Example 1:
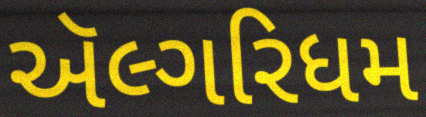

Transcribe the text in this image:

ઍલ્ગરિધમ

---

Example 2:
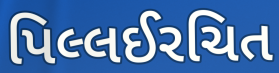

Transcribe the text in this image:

પિલ્લઈરચિત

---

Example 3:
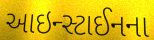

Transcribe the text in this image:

આઇન્સ્ટાઈનના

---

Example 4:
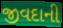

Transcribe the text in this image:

જીવદાની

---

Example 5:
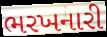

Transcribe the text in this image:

ભરખનારી